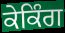
ਕੇਕਿੰਗ